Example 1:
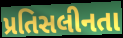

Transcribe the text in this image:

પ્રતિસલીનતા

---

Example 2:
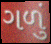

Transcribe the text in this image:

ગળું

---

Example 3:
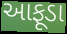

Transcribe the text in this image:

આફૂડા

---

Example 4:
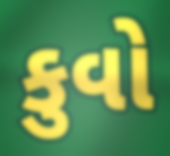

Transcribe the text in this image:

કુવો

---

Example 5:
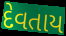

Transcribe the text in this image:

દેવતાય